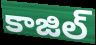
కాజిల్